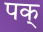
पक्